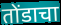
तोंडाचा